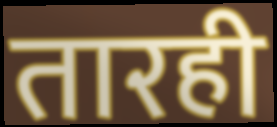
तारही